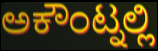
ಅಕೌಂಟ್ನಲ್ಲಿ